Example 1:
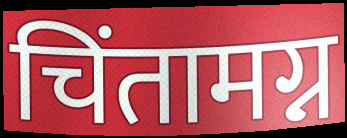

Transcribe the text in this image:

चिंतामग्न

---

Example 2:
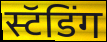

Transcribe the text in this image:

स्टॅडिंग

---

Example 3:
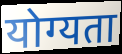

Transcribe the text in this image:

योग्यता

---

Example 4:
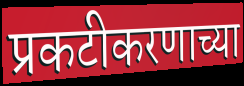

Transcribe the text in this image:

प्रकटीकरणाच्या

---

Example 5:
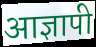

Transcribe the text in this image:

आज्ञापी